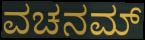
ವಚನಮ್